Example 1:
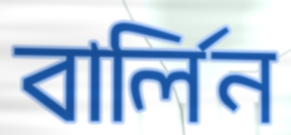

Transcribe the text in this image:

বার্লিন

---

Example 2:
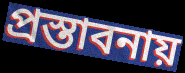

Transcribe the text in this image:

প্রস্তাবনায়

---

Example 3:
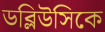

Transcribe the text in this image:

ডব্লিউসিকে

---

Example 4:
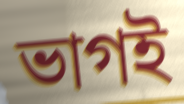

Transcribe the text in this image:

ভাগই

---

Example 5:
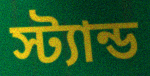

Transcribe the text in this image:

স্ট্যান্ড